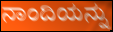
ನಾಂದಿಯನ್ನು